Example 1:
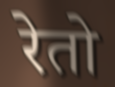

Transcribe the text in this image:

रेतो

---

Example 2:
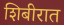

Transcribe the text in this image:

शिबीरात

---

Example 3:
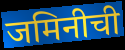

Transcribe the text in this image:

जमिनीची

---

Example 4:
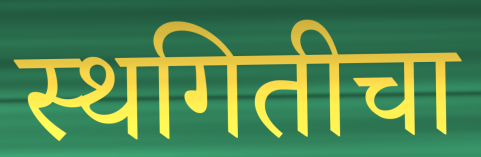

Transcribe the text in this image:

स्थगितीचा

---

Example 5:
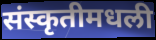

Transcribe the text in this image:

संस्कृतीमधली